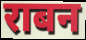
राबन